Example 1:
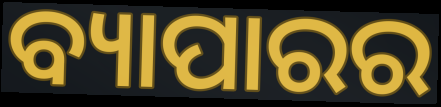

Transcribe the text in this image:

ବ୍ୟାପାରର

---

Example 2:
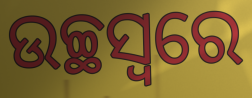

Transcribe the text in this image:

ଉଚ୍ଛସ୍ୱରେ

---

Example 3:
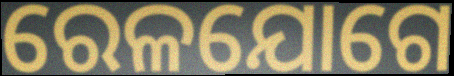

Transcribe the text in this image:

ରେଳଯୋଗେ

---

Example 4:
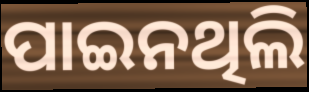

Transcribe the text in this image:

ପାଇନଥିଲି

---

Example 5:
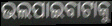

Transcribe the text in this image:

ଭଲପାଇବାଟାକୁ